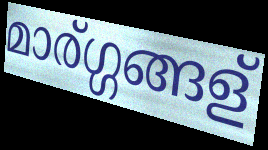
മാര്ഗ്ഗങ്ങള്